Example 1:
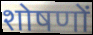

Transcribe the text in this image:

शोषणों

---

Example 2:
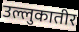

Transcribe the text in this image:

उल्लुकातीर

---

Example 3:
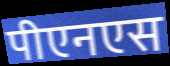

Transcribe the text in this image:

पीएनएस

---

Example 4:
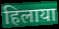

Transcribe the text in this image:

हिलाया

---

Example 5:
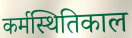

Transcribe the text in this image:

कर्मस्थितिकाल